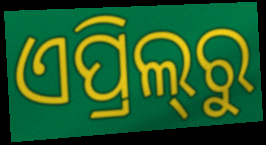
ଏପ୍ରିଲ୍‌ରୁ